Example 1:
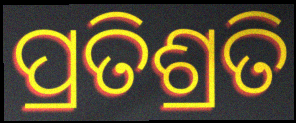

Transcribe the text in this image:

ପ୍ରତିଶ୍ରତି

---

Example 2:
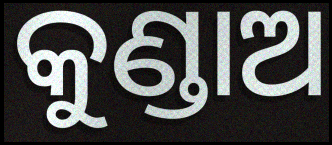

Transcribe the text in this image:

କୁଣ୍ଡାଅ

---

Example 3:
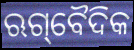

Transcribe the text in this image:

ଋଗ୍‌ବୈଦିକ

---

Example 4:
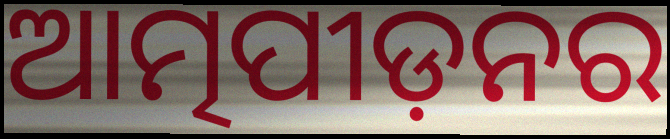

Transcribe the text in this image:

ଆତ୍ମପୀଡ଼ନର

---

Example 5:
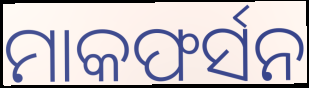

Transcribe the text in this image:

ମାକଫର୍ସନ